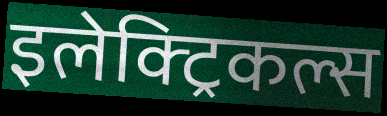
इलेक्ट्रिकल्‍स